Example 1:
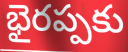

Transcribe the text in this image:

భైరప్పకు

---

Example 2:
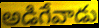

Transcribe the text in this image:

అడిగేవాడు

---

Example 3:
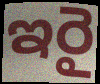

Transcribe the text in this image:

ఇరై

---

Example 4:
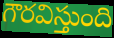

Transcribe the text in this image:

గౌరవిస్తుంది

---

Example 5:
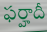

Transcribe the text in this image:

ఫర్హాదీ